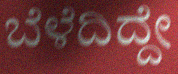
ಬೆಳೆದಿದ್ದೇ